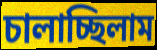
চালাচ্ছিলাম